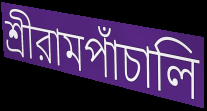
শ্রীরামপাঁচালি